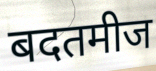
बदतमीज